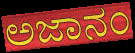
ಅಜಾನಂ